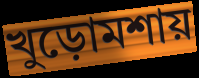
খুড়োমশায়